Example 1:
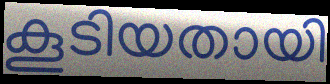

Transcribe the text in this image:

കൂടിയതായി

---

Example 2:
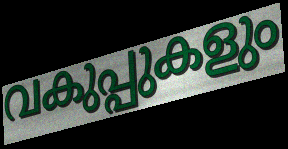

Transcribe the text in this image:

വകുപ്പുകളും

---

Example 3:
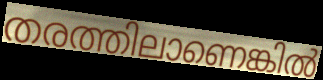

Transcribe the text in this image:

തരത്തിലാണെങ്കിൽ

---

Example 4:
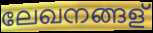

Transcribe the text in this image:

ലേഖനങ്ങള്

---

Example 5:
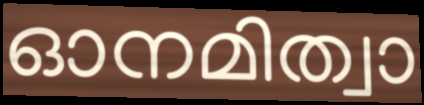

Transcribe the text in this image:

ഓനമിത്വാ